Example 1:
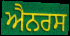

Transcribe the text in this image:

ਐਨਰਸ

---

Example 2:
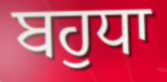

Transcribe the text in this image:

ਬਹੁਧਾ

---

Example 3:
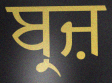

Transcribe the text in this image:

ਬ੍ਰਜ਼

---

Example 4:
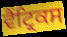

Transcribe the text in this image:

ਵੈਂਟ੍ਰਿਕਸ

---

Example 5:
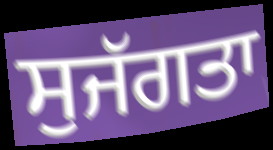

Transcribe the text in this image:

ਸੁਜੱਗਤਾ